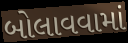
બોલાવવામાં